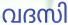
വദസി